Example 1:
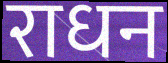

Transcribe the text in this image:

राधन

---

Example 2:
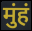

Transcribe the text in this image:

मुंहं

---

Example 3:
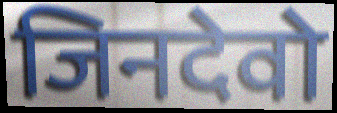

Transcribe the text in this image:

जिनदेवो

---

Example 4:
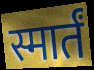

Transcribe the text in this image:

स्मार्तं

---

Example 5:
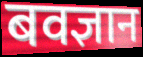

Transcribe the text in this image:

बवज्ञान